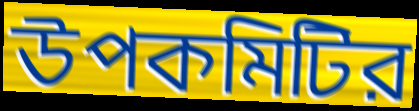
উপকমিটির